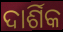
ଦାର୍ଶିକ